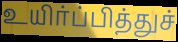
உயிர்ப்பித்துச்